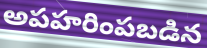
అపహరింపబడిన